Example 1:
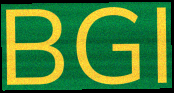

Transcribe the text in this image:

BGI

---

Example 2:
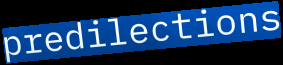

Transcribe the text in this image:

predilections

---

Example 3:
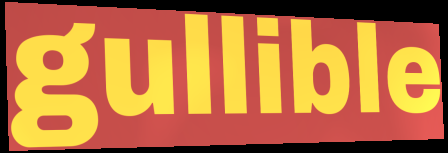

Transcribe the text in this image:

gullible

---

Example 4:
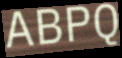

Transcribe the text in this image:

ABPQ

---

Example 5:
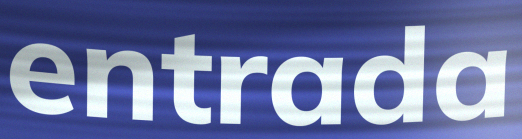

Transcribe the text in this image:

entrada